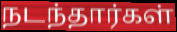
நடந்தார்கள்